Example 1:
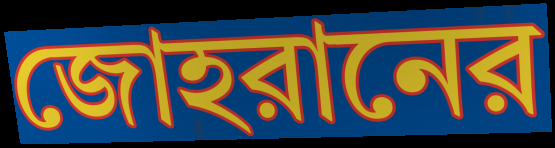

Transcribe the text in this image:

জোহরানের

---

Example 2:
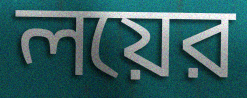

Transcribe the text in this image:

লয়ের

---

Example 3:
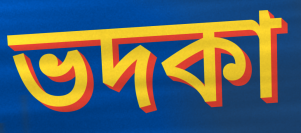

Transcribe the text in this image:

ভদকা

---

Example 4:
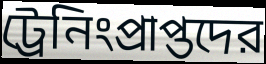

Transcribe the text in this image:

ট্রেনিংপ্রাপ্তদের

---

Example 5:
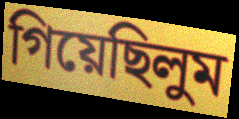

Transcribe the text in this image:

গিয়েছিলুম